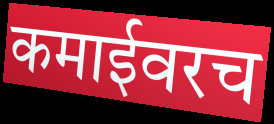
कमाईवरच